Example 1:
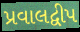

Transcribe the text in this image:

પ્રવાલદ્વીપ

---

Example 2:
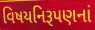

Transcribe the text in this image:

વિષયનિરૂપણનાં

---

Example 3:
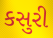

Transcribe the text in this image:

કસુરી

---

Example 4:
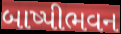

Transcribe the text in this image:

બાષ્પીભવન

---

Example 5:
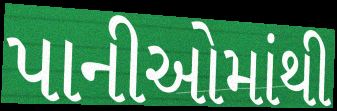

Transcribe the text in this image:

પાનીઓમાંથી